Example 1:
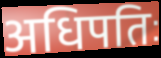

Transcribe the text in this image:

अधिपतिः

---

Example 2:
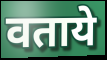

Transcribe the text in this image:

वताये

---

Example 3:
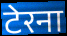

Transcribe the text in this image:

टेरना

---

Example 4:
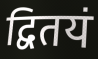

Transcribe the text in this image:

द्वितयं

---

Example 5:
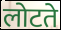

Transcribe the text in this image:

लोटते